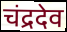
चंद्रदेव